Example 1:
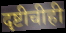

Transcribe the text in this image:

दृष्टीचीही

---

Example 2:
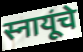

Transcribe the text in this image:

स्नायूंचे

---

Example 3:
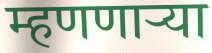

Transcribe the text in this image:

म्हणणार्‍या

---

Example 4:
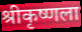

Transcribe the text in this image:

श्रीकृष्णला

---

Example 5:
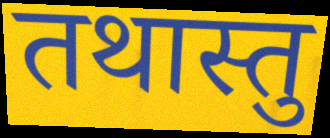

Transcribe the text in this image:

तथास्तु